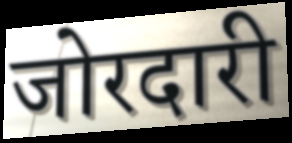
जोरदारी